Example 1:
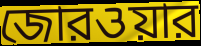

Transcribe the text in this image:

জোরওয়ার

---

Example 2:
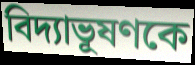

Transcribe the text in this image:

বিদ্যাভূষণকে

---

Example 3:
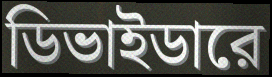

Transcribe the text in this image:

ডিভাইডারে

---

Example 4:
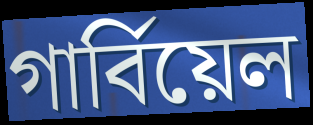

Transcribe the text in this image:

গার্বিয়েল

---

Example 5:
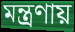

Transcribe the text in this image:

মন্ত্রণায়